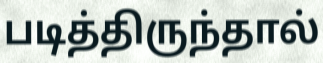
படித்திருந்தால்